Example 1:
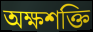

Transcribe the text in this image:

অক্ষশক্তি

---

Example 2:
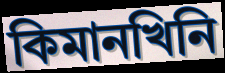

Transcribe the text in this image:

কিমানখিনি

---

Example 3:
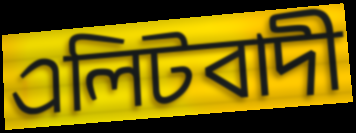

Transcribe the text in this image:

এলিটবাদী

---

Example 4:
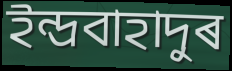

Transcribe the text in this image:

ইন্দ্ৰবাহাদুৰ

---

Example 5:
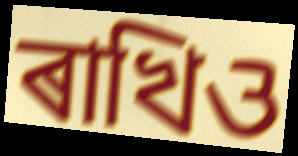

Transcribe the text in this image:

ৰাখিও